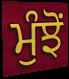
ਮੁੰਝੋਂ